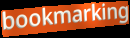
bookmarking